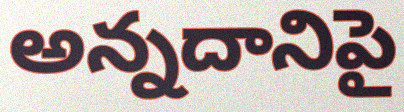
అన్నదానిపై